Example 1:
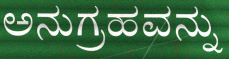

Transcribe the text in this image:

ಅನುಗ್ರಹವನ್ನು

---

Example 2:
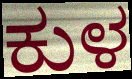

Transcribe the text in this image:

ಕುಳ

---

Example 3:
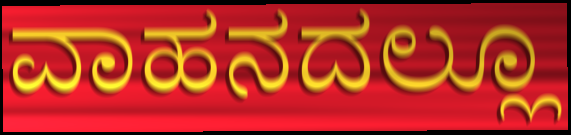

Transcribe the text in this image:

ವಾಹನದಲ್ಲೂ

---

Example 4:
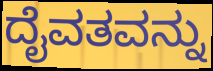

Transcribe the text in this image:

ದೈವತವನ್ನು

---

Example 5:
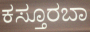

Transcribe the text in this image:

ಕಸ್ತೂರಬಾ